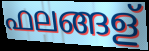
ഫലങ്ങള്